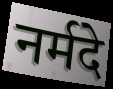
नर्मदे